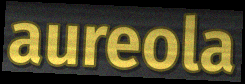
aureola